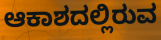
ಆಕಾಶದಲ್ಲಿರುವ